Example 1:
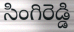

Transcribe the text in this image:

సింగిరెడ్డి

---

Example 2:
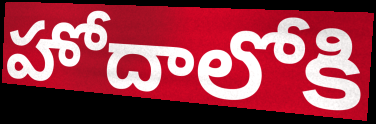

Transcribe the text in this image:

హోదాలోకి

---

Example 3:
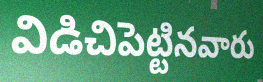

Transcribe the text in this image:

విడిచిపెట్టినవారు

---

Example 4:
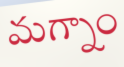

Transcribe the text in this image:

మగ్నాం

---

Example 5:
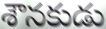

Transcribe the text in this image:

శౌనకుడు